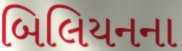
બિલિયનના